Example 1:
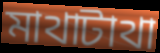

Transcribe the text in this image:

মাথাটাথা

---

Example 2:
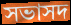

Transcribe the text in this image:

সভাসদ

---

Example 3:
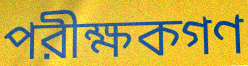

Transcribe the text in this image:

পরীক্ষকগণ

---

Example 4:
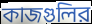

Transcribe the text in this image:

কাজগুলির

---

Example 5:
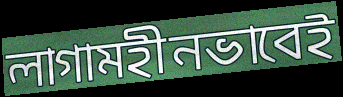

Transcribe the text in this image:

লাগামহীনভাবেই